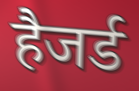
हैजर्ड